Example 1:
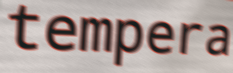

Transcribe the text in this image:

tempera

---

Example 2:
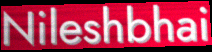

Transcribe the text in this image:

Nileshbhai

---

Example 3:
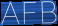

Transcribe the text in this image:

AFB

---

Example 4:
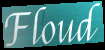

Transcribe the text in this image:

Floud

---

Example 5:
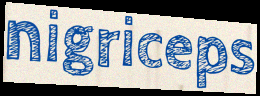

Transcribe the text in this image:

nigriceps